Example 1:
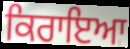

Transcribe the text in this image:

ਕਿਰਾਇਆ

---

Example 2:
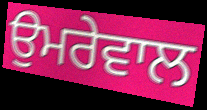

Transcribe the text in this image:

ਉਮਰੇਵਾਲ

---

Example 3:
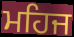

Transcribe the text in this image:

ਮਹਿਜ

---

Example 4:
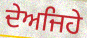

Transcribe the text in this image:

ਦੇਅਜਿਹੇ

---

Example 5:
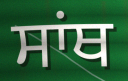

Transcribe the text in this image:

ਸਾਂਥ